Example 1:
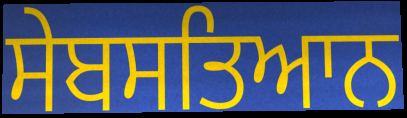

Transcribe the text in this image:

ਸੇਬਸਤਿਆਨ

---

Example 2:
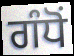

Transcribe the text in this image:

ਗੰਧੋਂ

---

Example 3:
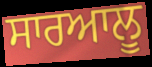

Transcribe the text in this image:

ਸਾਰਆਲੂ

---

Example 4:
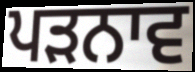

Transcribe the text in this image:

ਪੜਨਾਵ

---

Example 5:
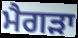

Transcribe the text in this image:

ਮੈਗੜਾ